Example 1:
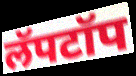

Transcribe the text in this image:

लॅपटॉप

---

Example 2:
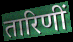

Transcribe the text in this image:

तारिणीं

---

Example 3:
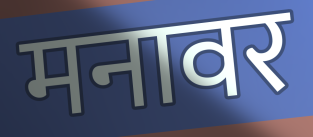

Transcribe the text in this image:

मनावर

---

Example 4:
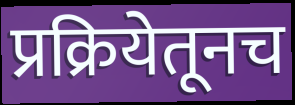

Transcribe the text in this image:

प्रक्रियेतूनच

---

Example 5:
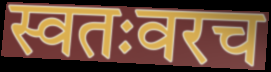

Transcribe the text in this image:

स्वतःवरच